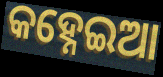
କହ୍ନେଇଆ